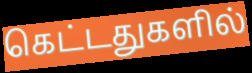
கெட்டதுகளில்